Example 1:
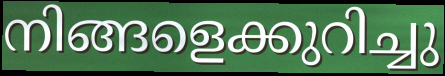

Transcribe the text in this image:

നിങ്ങളെക്കുറിച്ചു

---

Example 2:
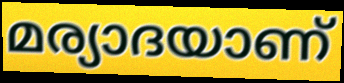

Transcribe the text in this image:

മര്യാദയാണ്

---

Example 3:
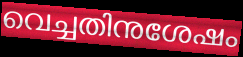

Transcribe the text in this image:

വെച്ചതിനുശേഷം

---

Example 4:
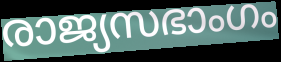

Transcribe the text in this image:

രാജ്യസഭാംഗം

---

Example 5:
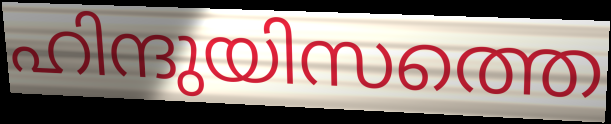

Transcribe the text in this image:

ഹിന്ദുയിസത്തെ